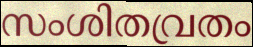
സംശിതവ്രതം